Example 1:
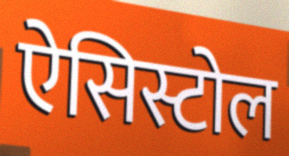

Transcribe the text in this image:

ऐसिस्टोल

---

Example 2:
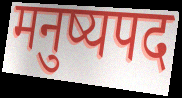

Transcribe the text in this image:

मनुष्यपद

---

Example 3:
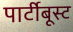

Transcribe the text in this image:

पार्टीबूस्ट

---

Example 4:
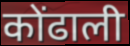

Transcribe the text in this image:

कोंढाली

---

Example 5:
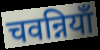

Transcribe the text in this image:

चवन्नियाँ